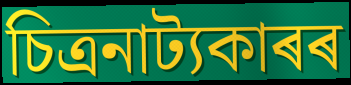
চিত্ৰনাট্যকাৰৰ